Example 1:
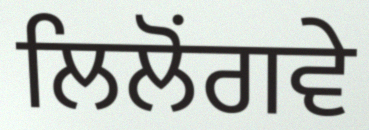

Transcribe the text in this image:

ਲਿਲੋਂਗਵੇ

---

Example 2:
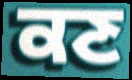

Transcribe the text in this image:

ਕਣ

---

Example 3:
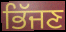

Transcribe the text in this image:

ਭਿੱਜਣ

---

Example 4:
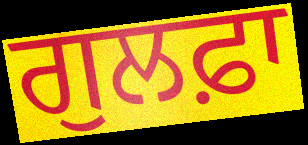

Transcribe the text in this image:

ਗੁਲਫ਼ਾ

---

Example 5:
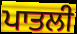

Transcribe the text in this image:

ਪਾਤਲੀ